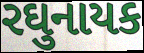
રઘુનાયક